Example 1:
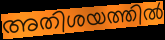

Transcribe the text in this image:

അതിശയത്തിൽ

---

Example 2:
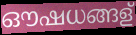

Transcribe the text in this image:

ഔഷധങ്ങള്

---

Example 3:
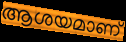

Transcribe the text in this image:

ആശയമാണ്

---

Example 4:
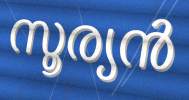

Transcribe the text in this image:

സൂര്യൻ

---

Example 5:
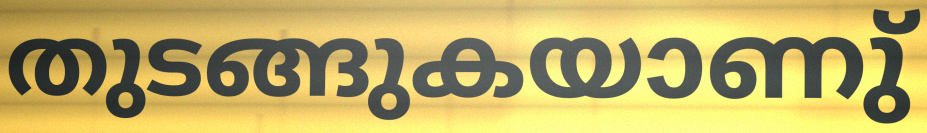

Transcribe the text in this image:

തുടങ്ങുകയാണു്